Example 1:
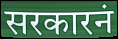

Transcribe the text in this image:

सरकारनं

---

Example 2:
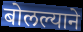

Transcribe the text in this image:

बोलल्याने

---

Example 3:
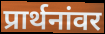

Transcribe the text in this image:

प्रार्थनांवर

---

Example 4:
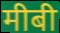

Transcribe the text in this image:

मीबी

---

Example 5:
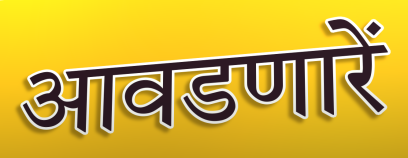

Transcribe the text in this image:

आवडणारें